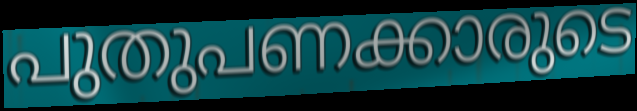
പുതുപണക്കാരുടെ